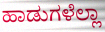
ಹಾಡುಗಳೆಲ್ಲಾ